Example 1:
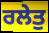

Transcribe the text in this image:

ਰਲੇਤੁ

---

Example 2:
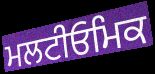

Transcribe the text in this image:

ਮਲਟੀਓਮਿਕ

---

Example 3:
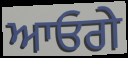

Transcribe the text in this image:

ਆਓਗੇ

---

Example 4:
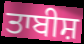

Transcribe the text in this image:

ਤਾਬੀਸ਼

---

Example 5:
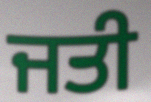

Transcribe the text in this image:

ਜਤੀ